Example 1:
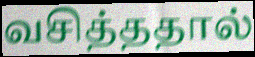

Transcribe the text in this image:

வசித்ததால்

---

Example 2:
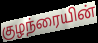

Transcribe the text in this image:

குழந்ரையின்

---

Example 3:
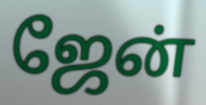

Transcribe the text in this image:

ஜேன்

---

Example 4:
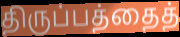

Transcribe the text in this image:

திருப்பத்தைத்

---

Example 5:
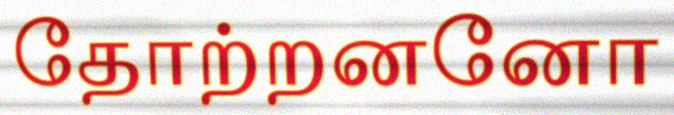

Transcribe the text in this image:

தோற்றனனோ